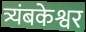
त्र्यंबकेश्वर